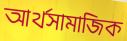
আর্থসামাজিক